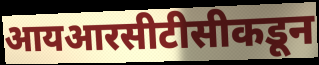
आयआरसीटीसीकडून